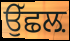
ਉੱਛਲ਼